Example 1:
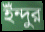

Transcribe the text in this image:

ইঁন্দুর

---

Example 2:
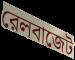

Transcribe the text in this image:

রেলবাজেট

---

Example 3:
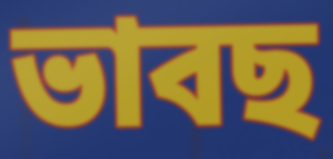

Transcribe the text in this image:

ভাবছ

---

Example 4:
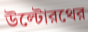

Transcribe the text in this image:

উল্টোরথের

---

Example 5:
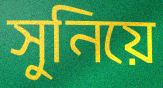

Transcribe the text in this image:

সুনিয়ে